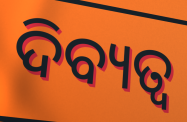
ଦିବ୍ୟତ୍ବ